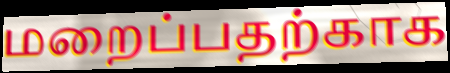
மறைப்பதற்காக